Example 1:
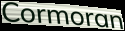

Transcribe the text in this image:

Cormoran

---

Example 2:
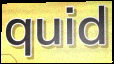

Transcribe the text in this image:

quid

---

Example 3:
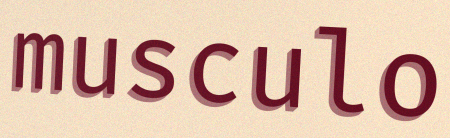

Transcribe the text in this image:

musculo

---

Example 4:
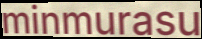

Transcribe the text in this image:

minmurasu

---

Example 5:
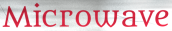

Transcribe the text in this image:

Microwave